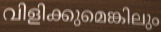
വിളിക്കുമെങ്കിലും